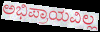
ಅಭಿಪ್ರಾಯವಿಲ್ಲ